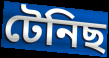
টেনিছ